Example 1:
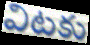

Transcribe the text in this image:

విటకు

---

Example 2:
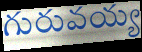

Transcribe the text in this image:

గురువయ్య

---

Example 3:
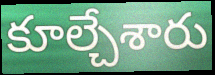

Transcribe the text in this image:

కూల్చేశారు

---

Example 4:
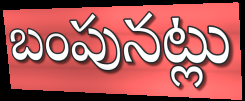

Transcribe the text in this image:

బంపునట్లు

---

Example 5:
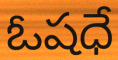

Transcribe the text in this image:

ఓషధే